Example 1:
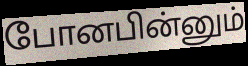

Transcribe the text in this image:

போனபின்னும்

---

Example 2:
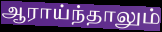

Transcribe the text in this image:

ஆராய்ந்தாலும்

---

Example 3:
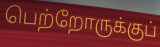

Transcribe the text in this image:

பெற்றோருக்குப்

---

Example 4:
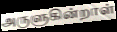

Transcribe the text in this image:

அருளுகின்றாள்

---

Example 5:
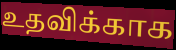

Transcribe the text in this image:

உதவிக்காக